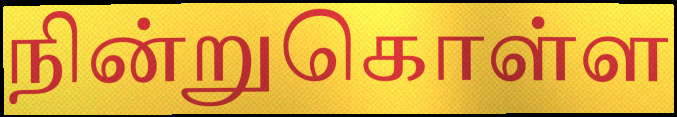
நின்றுகொள்ள